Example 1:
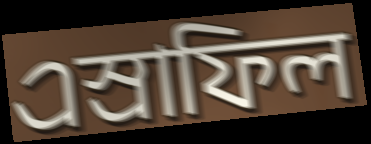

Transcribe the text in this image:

এস্রাফিল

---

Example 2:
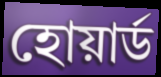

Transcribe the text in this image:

হোয়ার্ড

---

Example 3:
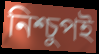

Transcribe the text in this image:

নিশ্চুপই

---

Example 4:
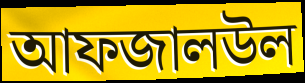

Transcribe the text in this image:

আফজালউল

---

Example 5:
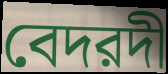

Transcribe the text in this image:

বেদরদী